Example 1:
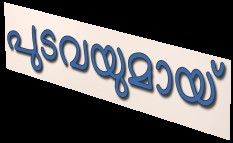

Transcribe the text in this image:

പുടവയുമായ്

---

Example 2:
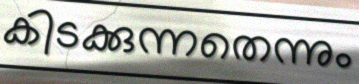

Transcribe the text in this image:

കിടക്കുന്നതെന്നും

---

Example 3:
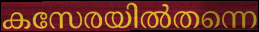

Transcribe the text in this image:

കസേരയിൽതന്നെ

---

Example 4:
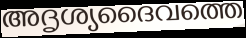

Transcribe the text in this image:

അദൃശ്യദൈവത്തെ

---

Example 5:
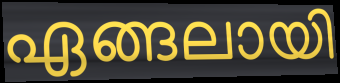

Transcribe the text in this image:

ഏങ്ങലായി